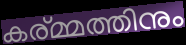
കര്മ്മത്തിനും